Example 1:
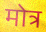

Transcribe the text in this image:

मोत्र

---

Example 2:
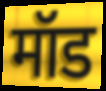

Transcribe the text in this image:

मॉड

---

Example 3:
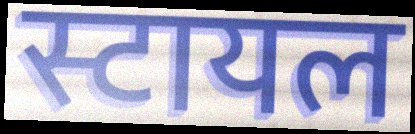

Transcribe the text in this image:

स्टायल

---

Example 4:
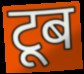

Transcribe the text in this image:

टूब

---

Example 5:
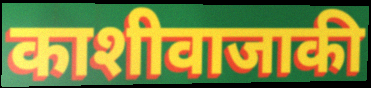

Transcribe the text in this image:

काशीवाजाकी